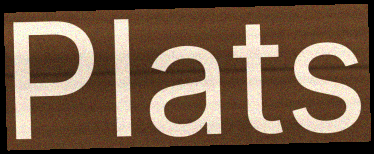
Plats